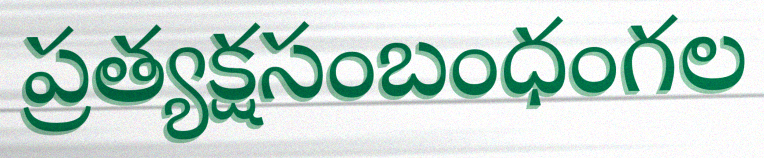
ప్రత్యక్షసంబంధంగల